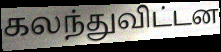
கலந்துவிட்டன